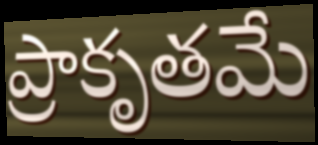
ప్రాకృతమే